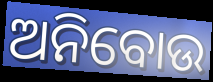
ଅନିବୋଉ